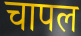
चापल